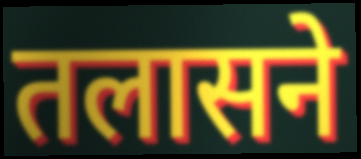
तलासने